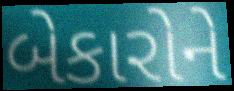
બેકારોને